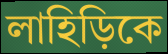
লাহিড়িকে